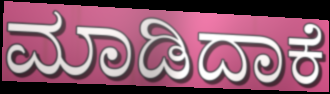
ಮಾಡಿದಾಕೆ